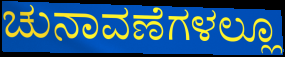
ಚುನಾವಣೆಗಳಲ್ಲೂ